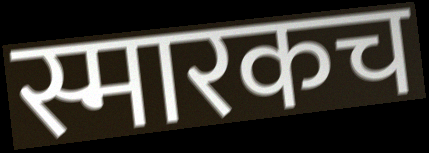
स्मारकच